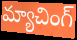
మ్యాచింగ్